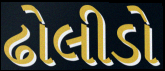
ઢોલીડો